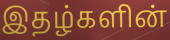
இதழ்களின்